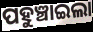
ପହୁଞ୍ଚାଇଲା